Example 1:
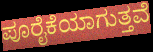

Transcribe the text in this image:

ಪೂರೈಕೆಯಾಗುತ್ತವೆ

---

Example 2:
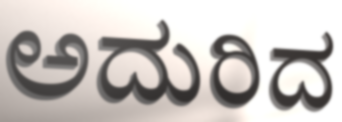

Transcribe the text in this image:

ಅದುರಿದ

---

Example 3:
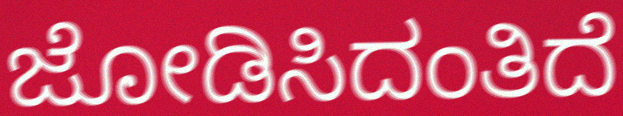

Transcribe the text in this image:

ಜೋಡಿಸಿದಂತಿದೆ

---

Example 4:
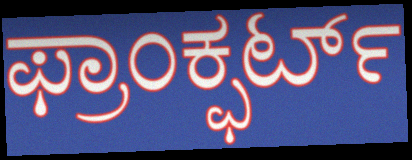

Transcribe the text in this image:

ಫ್ರಾಂಕ್ಫರ್ಟ್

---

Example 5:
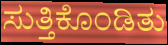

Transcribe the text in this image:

ಸುತ್ತಿಕೊಂಡಿತು